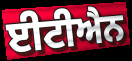
ਈਟੀਐਨ